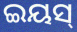
ଇୟସ୍